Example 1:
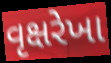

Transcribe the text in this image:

વૃક્ષરેખા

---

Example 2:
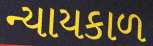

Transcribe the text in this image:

ન્યાયકાળ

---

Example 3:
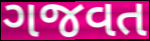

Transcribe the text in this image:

ગજવત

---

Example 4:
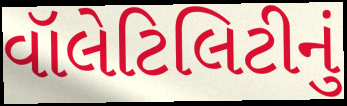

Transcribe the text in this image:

વૉલેટિલિટીનું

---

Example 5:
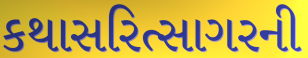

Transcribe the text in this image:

કથાસરિત્સાગરની